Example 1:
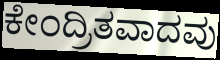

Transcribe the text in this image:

ಕೇಂದ್ರಿತವಾದವು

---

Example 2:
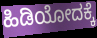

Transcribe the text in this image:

ಹಿಡಿಯೋದಕ್ಕೆ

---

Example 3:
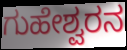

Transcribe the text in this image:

ಗುಹೇಶ್ವರನ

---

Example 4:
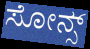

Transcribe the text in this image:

ಸೋನ್ಸ್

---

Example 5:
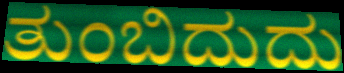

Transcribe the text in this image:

ತುಂಬಿದುದು